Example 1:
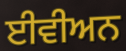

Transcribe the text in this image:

ਈਵੀਅਨ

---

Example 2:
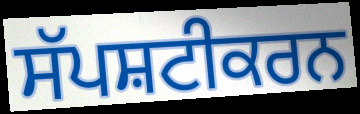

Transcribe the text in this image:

ਸੱਪਸ਼ਟੀਕਰਨ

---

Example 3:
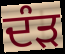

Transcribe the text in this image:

ਦੰੜ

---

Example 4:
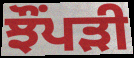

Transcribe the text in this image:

ਝੌਂਪੜੀ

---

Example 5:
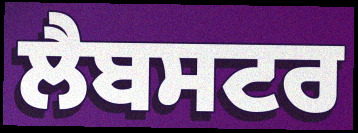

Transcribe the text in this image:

ਲੈਬਸਟਰ